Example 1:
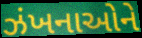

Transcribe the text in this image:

ઝંખનાઓને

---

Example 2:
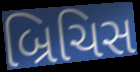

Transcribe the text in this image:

બ્રિચિસ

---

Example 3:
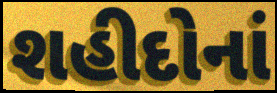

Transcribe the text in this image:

શહીદોનાં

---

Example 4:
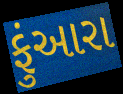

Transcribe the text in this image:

ફુંઆરા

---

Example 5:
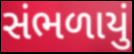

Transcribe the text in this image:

સંભળાયું